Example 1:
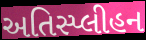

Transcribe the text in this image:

અતિસ્પ્લીહન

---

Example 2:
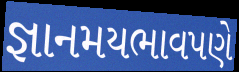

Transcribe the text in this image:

જ્ઞાનમયભાવપણે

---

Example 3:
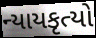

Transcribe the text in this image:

ન્યાયકૃત્યો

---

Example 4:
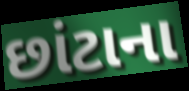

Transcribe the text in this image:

છાંટાના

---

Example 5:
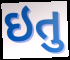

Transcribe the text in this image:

ઇતુ